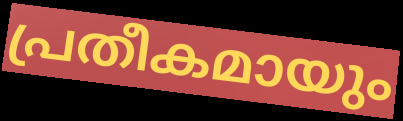
പ്രതീകമായും